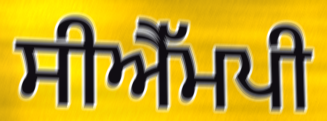
ਸੀਐੱਮਪੀ